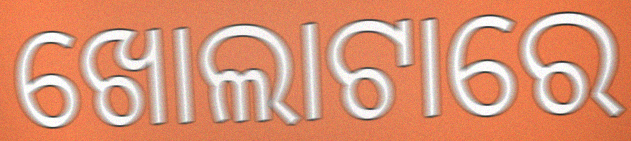
ଖୋଲାଟାରେ